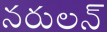
నరులన్